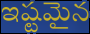
ఇష్టమైన